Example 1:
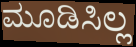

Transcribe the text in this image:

ಮೂಡಿಸಿಲ್ಲ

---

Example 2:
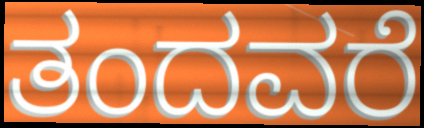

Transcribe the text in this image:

ತಂದವರೆ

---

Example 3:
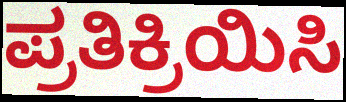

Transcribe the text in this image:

ಪ್ರತಿಕ್ರಿಯಿಸಿ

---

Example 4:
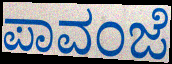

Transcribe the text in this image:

ಪಾವಂಜೆ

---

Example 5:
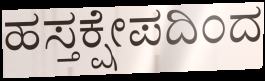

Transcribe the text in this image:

ಹಸ್ತಕ್ಷೇಪದಿಂದ